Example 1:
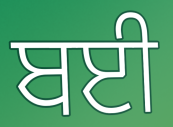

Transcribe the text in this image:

ਬਈ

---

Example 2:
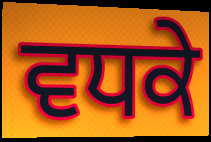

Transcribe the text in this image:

ਵਧਕੇ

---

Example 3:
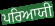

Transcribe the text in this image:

ਪਰਿਆਯੀ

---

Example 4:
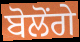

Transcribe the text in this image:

ਬੋਲੋਂਗੇ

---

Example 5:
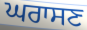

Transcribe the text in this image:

ਘਰਾਸਣ